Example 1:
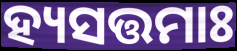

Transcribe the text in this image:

ହ୍ୟସତ୍ତମାଃ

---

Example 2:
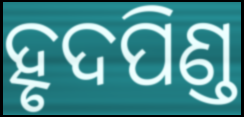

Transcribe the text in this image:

ହୃଦପିଣ୍ଡ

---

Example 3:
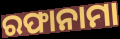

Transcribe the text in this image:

ରଫାନାମା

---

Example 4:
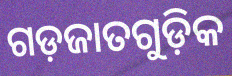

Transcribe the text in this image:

ଗଡ଼ଜାତଗୁଡ଼ିକ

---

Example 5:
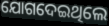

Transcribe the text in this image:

ଯୋଗଦେଇଥିଲେ